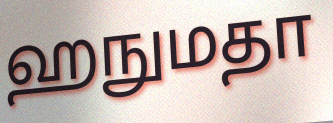
ஹநுமதா